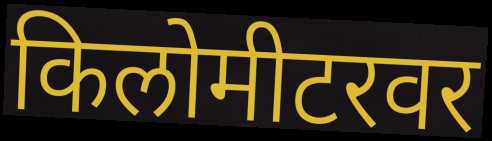
किलोमीटरवर